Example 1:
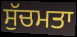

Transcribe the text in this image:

ਸੁੱਚਮਤਾ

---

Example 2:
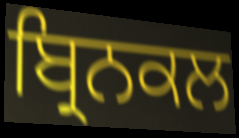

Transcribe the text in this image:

ਬ੍ਰਿਨਕਲ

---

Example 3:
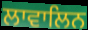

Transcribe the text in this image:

ਲਾਵਾਲਿਨ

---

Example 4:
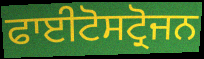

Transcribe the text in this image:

ਫਾਈਟੋਸਟ੍ਰੋਜਨ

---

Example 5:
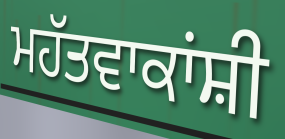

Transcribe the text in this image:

ਮਹੱਤਵਾਕਾਂਸ਼ੀ